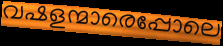
വഷളന്മാരെപ്പോലെ